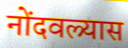
नोंदवल्यास